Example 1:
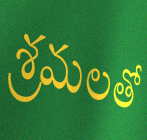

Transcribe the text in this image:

శ్రమలతో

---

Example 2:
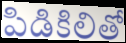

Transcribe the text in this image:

పిడికిలితో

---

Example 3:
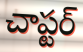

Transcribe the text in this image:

చాప్టర్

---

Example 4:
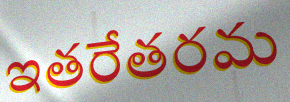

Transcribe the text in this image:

ఇతరేతరమ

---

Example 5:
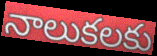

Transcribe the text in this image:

నాలుకలకు